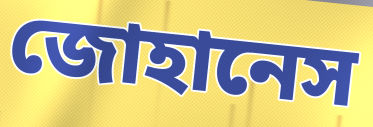
জোহানেস